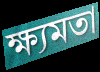
ক্ষ্যমতা